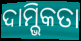
ଦାମ୍ଭିକତା